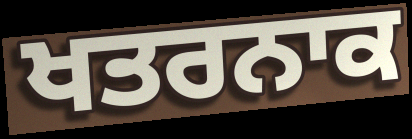
ਖਤਰਨਾਕ